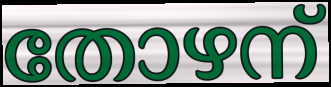
തോഴന്